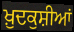
ਖ਼ੁਦਕੁਸ਼ੀਆਂ